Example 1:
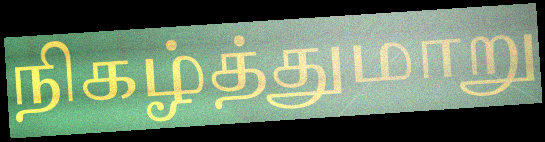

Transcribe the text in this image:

நிகழ்த்துமாறு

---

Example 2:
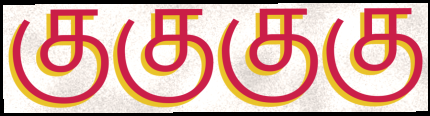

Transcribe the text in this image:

குகுகுகு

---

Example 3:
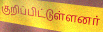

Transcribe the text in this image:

குறிப்பிட்டுள்ளனர்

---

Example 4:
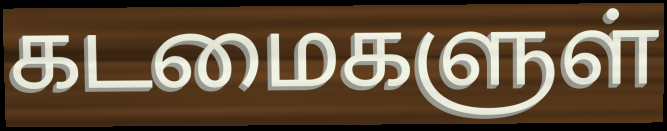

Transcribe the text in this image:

கடமைகளுள்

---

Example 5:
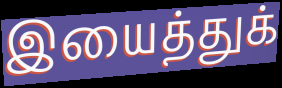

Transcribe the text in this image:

இயைத்துக்